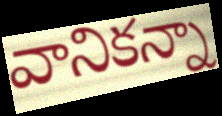
వానికన్నా